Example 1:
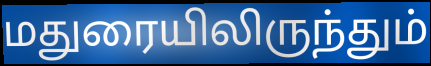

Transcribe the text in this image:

மதுரையிலிருந்தும்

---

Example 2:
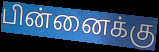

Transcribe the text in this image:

பின்னைக்கு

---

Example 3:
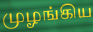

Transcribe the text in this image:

முழங்கிய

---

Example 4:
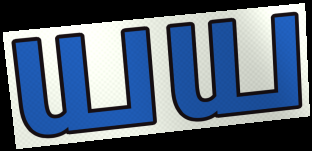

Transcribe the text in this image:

யய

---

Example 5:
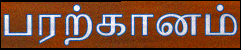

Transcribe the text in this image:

பரற்கானம்